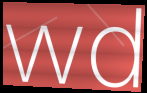
wd